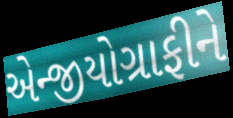
એન્જીયોગ્રાફીને